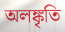
অলঙ্কৃতি